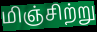
மிஞ்சிற்று